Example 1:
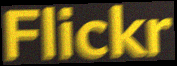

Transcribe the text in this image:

Flickr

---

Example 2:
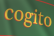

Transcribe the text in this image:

cogito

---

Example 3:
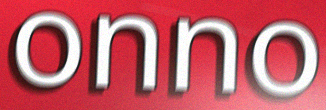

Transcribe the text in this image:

onno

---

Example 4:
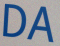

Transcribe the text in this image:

DA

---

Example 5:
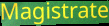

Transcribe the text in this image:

Magistrate